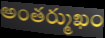
అంతర్ముఖం